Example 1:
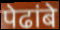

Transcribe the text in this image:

पेढांबे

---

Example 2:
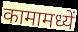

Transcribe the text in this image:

कामामध्यें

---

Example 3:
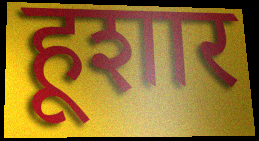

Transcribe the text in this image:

हूशार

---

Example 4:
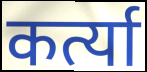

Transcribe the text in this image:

कर्त्या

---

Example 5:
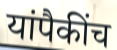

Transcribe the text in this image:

यांपैकींच